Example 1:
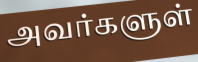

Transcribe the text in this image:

அவர்களுள்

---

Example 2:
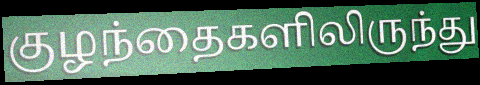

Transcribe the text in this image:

குழந்தைகளிலிருந்து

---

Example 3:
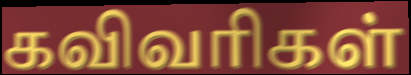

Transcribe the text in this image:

கவிவரிகள்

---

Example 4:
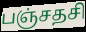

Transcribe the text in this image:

பஞ்சதசி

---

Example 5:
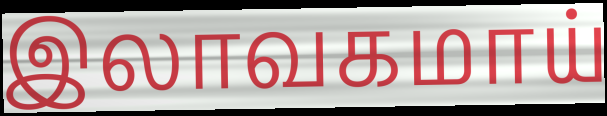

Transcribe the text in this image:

இலாவகமாய்